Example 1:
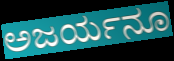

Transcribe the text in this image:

ಅಜರ್ಯನೂ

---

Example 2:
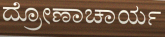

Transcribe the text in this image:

ದ್ರೋಣಾಚಾರ್ಯ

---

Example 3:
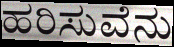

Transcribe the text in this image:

ಹರಿಸುವೆನು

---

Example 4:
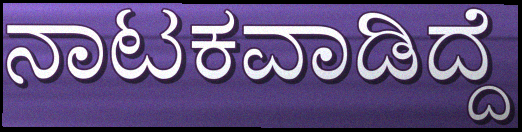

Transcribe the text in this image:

ನಾಟಕವಾಡಿದ್ದೆ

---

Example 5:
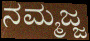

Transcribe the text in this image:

ನಮ್ಮಜ್ಜ